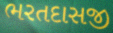
ભરતદાસજી